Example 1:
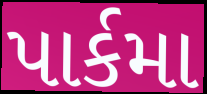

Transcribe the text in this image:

પાર્કમા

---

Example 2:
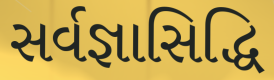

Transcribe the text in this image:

સર્વજ્ઞાસિદ્ધિ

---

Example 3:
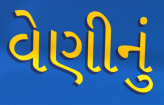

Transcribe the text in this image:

વેણીનું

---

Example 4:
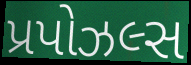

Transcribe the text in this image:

પ્રપોઝલ્સ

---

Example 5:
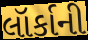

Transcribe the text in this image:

લૉર્કાની